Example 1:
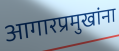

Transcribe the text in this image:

आगारप्रमुखांना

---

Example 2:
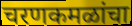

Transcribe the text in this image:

चरणकमळांचा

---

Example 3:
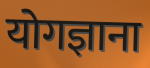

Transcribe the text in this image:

योगज्ञाना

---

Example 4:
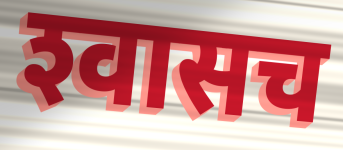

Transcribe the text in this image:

श्‍वासच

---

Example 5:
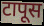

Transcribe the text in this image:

टापूस